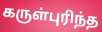
கருள்புரிந்த